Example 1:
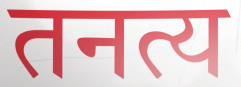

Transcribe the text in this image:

तनत्य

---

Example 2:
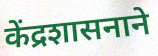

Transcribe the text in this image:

केंद्रशासनाने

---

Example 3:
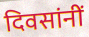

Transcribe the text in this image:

दिवसांनीं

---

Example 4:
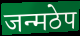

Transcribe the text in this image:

जन्मठेप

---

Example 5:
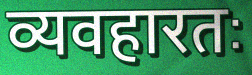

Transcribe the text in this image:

व्यवहारतः